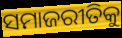
ସମାଜରୀତିକୁ